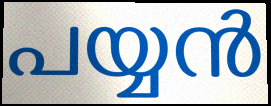
പയ്യൻ